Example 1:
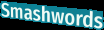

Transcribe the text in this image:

Smashwords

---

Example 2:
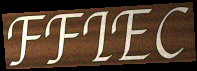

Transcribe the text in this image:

FFIEC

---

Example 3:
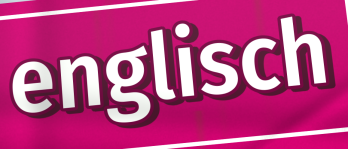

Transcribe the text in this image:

englisch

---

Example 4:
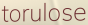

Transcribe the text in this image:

torulose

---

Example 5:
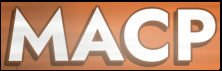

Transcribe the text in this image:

MACP